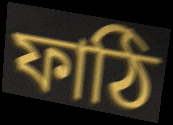
ফাঠি